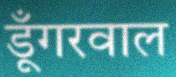
डूँगरवाल